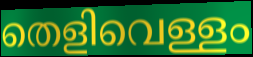
തെളിവെള്ളം